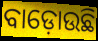
ବାଡ଼ୋଉଛି